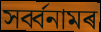
সৰ্ব্বনামৰ